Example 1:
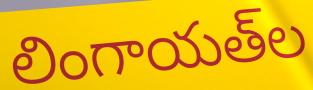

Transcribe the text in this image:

లింగాయత్‌ల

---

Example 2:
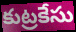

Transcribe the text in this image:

కుట్రకేసు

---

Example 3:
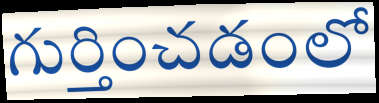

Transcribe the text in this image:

గుర్తించడంలో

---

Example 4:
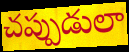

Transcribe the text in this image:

చప్పుడులా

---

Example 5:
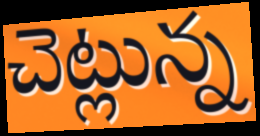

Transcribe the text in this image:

చెట్లున్న